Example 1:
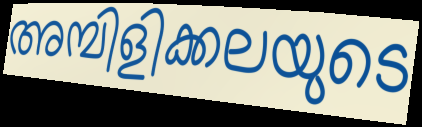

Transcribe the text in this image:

അമ്പിളിക്കലയുടെ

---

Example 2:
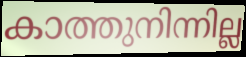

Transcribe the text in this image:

കാത്തുനിന്നില്ല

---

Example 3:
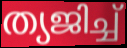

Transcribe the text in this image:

ത്യജിച്ച്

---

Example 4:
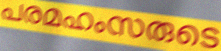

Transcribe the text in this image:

പരമഹംസരുടെ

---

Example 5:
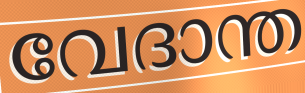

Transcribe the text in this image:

വേദാന്ത